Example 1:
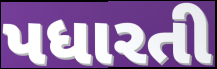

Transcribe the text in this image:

પધારતી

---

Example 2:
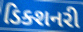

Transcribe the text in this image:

ડિક્શનરી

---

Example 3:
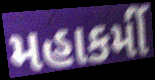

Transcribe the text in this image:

મહાકર્મી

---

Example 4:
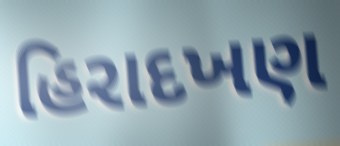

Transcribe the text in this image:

હિરાદખણ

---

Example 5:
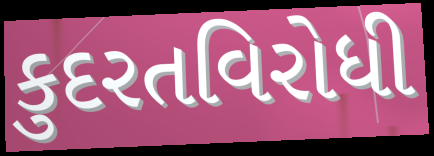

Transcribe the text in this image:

કુદરતવિરોધી